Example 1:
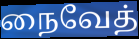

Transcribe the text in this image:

நைவேத்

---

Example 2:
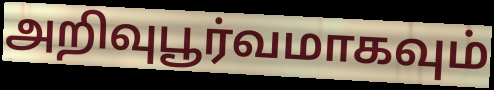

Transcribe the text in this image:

அறிவுபூர்வமாகவும்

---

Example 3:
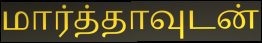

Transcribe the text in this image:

மார்த்தாவுடன்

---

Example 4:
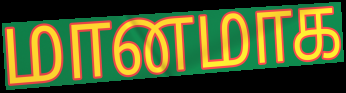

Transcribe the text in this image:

மானமாக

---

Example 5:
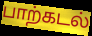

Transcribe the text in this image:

பாற்கடல்